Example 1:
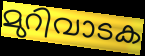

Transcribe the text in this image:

മുറിവാടക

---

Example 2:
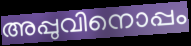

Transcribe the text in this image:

അപ്പുവിനൊപ്പം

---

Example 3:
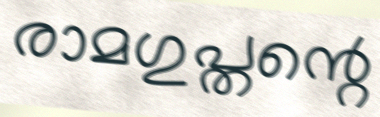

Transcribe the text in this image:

രാമഗുപ്തന്റെ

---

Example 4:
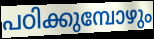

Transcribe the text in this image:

പഠിക്കുമ്പോഴും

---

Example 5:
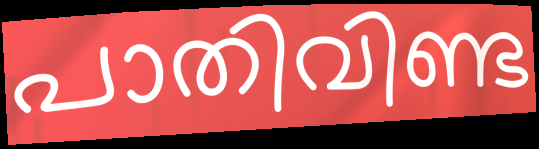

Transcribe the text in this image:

പാതിവിണ്ട